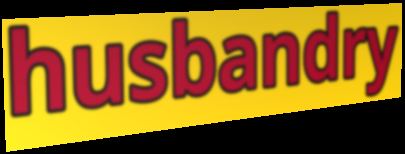
husbandry